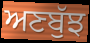
ਅਣਬੁੱਝ